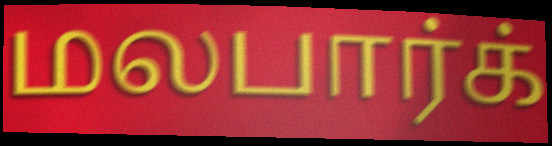
மலபார்க்